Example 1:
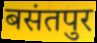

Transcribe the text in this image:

बसंतपुर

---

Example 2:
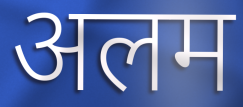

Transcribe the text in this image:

अलम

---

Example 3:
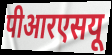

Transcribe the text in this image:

पीआरएसयू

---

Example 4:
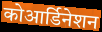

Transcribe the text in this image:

कोआर्डिनेशन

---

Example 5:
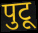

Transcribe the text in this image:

पुटू